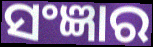
ସଂଜ୍ଞାର